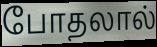
போதலால்